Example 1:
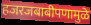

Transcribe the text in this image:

हजरजबाबीपणामुळे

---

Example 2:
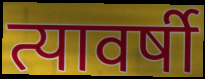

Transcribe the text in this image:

त्यावर्षी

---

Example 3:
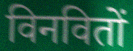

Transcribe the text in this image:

विनवितों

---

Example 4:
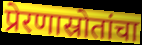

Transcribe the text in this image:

प्रेरणास्रोतांचा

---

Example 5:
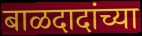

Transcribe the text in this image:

बाळदादांच्या